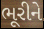
ભૂરીને